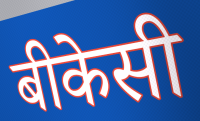
बीकेसी